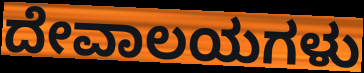
ದೇವಾಲಯಗಳು